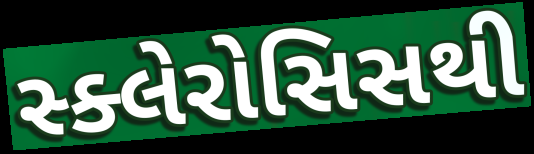
સ્ક્લેરોસિસથી